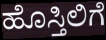
ಹೊಸ್ತಿಲಿಗೆ